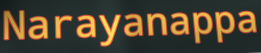
Narayanappa